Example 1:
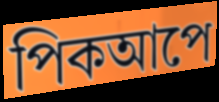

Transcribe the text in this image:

পিকআপে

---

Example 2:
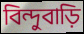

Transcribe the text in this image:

বিন্দুবাড়ি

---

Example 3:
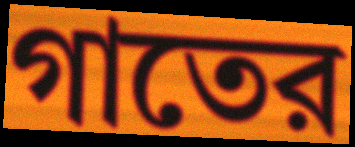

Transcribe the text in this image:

গাতের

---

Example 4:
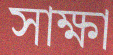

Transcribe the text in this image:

সাক্ষা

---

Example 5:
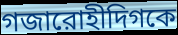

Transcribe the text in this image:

গজারোহীদিগকে